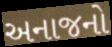
અનાજનો